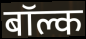
बॉल्क